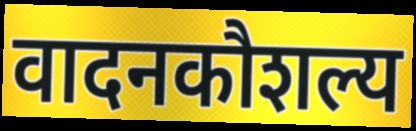
वादनकौशल्य